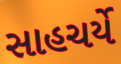
સાહચર્યે